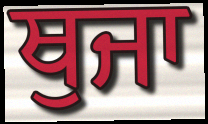
ਥੁਜਾ